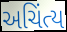
અચિંત્ય